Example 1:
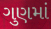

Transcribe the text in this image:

ગુણમાં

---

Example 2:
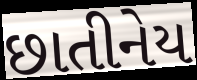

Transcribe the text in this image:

છાતીનેય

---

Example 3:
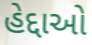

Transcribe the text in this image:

હેદ્દાઓ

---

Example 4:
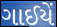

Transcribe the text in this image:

ગાઈયેં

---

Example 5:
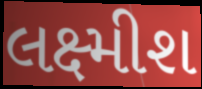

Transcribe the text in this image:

લક્ષ્મીશ